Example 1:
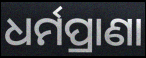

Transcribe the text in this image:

ଧର୍ମପ୍ରାଣା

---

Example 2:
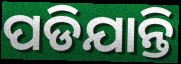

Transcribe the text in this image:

ପଡିଯାନ୍ତି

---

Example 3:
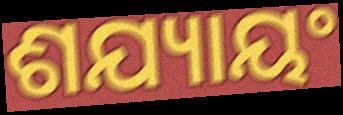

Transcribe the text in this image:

ଶଯ୍ୟାୟଂ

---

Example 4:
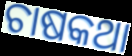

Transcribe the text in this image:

ଚାଷକଥା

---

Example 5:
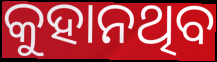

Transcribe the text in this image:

କୁହାନଥିବ